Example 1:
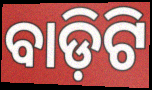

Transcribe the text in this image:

ବାଡ଼ିଟି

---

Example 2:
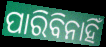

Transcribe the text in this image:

ପାରିବିନାହିଁ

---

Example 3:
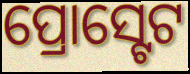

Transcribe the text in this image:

ପ୍ରୋସ୍ଟେଟ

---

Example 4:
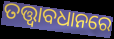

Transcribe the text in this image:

ତତ୍ତ୍ଵାବଧାନରେ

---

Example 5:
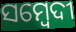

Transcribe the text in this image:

ସମ୍ବେଦୀ